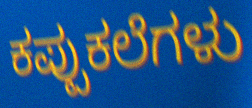
ಕಪ್ಪುಕಲೆಗಳು